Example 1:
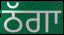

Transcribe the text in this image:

ਠੱਗਾ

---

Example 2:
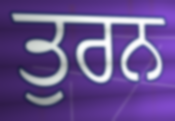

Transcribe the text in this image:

ਤੁਰਨ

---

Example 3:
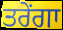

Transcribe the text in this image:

ਤਰੇਂਗਾ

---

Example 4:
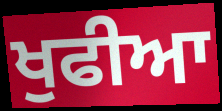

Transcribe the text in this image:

ਖੁਫੀਆ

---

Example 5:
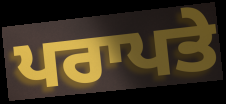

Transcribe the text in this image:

ਪਰਾਪਤੇ